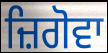
ਜ਼ਿਗੋਵਾ